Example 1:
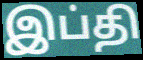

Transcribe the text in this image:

இப்தி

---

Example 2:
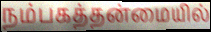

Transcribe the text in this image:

நம்பகத்தன்மையில்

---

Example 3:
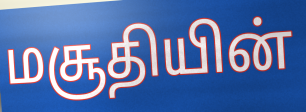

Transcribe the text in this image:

மசூதியின்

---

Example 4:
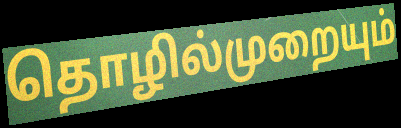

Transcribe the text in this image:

தொழில்முறையும்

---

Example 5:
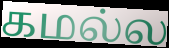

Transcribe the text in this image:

கமல்ல